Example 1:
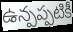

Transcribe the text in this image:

ఉన్పప్పటికీ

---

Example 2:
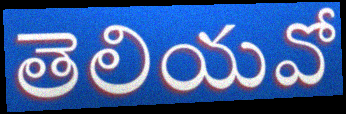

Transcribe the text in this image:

తెలియవో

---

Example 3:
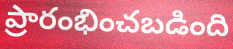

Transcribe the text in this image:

ప్రారంభించబడింది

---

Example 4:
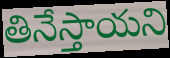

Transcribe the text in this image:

తినేస్తాయని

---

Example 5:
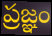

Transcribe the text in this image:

ప్రజ్ఞం